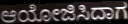
ಆಯೋಜಿಸಿದಾಗ